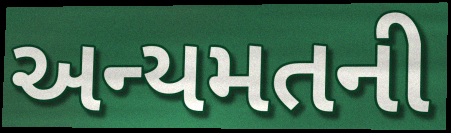
અન્યમતની